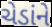
ચેડાંને